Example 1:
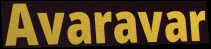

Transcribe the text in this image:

Avaravar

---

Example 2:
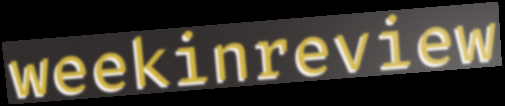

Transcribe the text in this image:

weekinreview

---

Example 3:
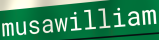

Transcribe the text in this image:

musawilliam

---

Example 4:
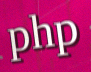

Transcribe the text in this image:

php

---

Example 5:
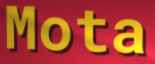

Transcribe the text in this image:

Mota